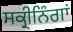
ਸਕ੍ਰੀਨਿੰਗਾਂ